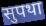
सुपथा